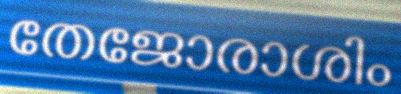
തേജോരാശിം